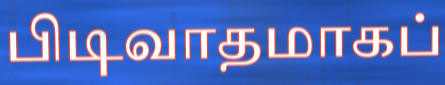
பிடிவாதமாகப்